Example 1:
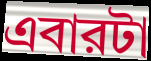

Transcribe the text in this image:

এবারটা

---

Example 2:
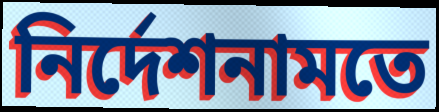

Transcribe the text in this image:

নির্দেশনামতে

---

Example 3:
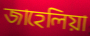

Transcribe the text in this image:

জাহেলিয়া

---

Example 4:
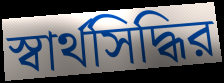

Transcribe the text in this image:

স্বার্থসিদ্ধির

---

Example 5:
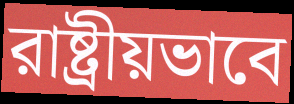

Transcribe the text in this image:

রাষ্ট্রীয়ভাবে